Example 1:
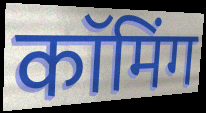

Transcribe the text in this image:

कॉमिंग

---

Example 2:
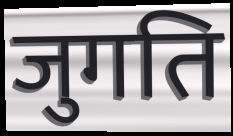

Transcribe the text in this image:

जुगति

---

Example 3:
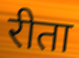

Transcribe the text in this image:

रीता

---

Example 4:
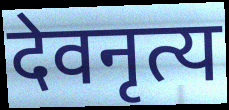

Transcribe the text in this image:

देवनृत्य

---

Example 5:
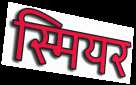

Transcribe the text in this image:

स्मियर